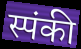
स्पंकी